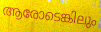
ആരോടെങ്കിലും